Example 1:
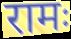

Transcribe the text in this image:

रामः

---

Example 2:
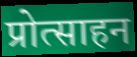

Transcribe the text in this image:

प्रोत्साहन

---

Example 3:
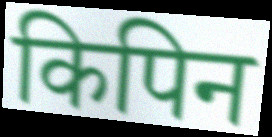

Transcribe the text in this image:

किपिन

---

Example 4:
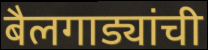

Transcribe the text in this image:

बैलगाड्यांची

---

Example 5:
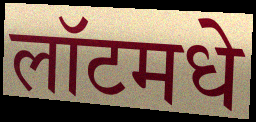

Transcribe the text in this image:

लॉटमधे